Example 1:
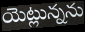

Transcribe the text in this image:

యెట్లున్నను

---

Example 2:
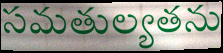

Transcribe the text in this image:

సమతుల్యతను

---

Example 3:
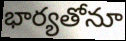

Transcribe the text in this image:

భార్యతోనూ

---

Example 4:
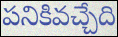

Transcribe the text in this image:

పనికివచ్చేది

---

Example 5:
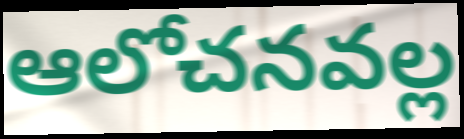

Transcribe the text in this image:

ఆలోచనవల్ల